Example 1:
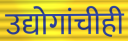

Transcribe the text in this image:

उद्योगांचीही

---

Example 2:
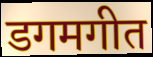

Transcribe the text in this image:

डगमगीत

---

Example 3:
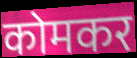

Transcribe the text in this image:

कोमकर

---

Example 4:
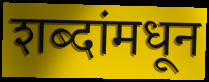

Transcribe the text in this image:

शब्दांमधून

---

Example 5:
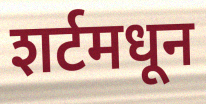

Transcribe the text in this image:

शर्टमधून